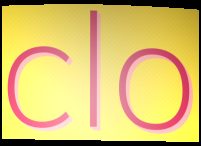
clo